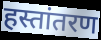
हस्तांतरण